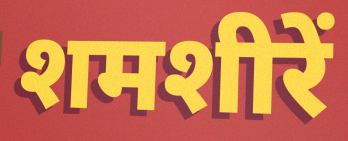
शमशीरें